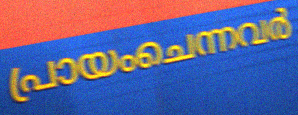
പ്രായംചെന്നവർ